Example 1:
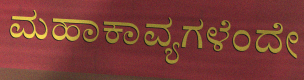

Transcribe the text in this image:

ಮಹಾಕಾವ್ಯಗಳೆಂದೇ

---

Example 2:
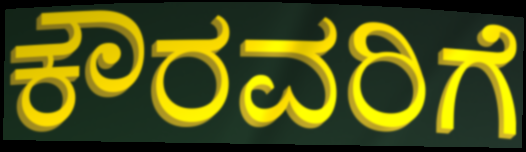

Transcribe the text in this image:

ಕೌರವರಿಗೆ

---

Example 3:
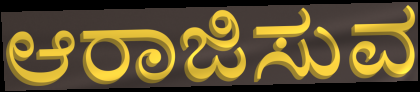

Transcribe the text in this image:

ಆರಾಜಿಸುವ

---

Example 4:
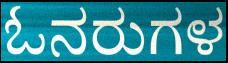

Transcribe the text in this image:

ಓನರುಗಳ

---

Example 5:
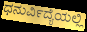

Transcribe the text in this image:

ಧನುರ್ವಿದ್ಯೆಯಲ್ಲಿ